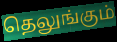
தெலுங்கும்